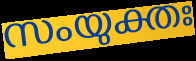
സംയുക്തഃ